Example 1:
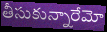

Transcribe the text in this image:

తీసుకున్నారేమో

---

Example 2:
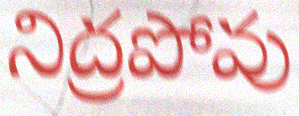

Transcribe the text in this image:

నిద్రపోవు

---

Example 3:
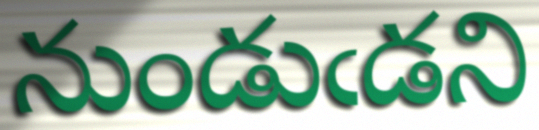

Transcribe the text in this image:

నుండుఁడని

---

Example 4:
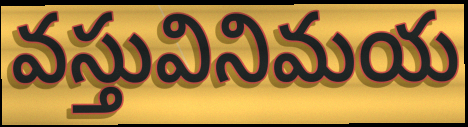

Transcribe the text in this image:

వస్తువినిమయ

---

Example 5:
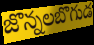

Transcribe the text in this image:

జొన్నలబొగుడ